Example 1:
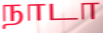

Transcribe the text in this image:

நாடா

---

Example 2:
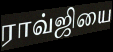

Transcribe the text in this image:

ராவ்ஜியை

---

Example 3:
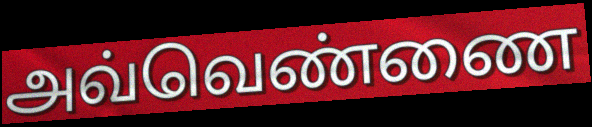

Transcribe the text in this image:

அவ்வெண்ணை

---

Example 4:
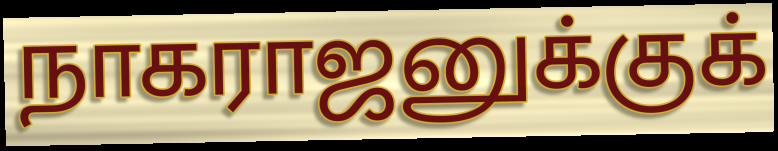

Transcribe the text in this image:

நாகராஜனுக்குக்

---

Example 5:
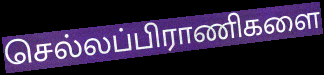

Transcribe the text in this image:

செல்லப்பிராணிகளை